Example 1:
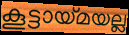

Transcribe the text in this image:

കൂട്ടായ്മയല്ല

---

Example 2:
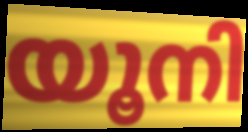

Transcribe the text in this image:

യൂനി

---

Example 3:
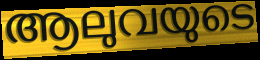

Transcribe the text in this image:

ആലുവയുടെ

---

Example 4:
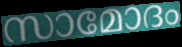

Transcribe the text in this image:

സാമോദം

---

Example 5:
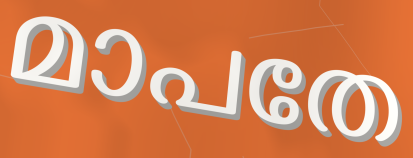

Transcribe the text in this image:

മാപതേ